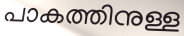
പാകത്തിനുള്ള